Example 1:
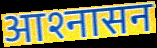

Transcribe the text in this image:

आश्नासन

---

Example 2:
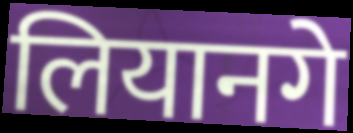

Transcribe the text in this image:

लियानगे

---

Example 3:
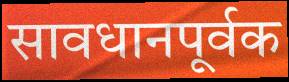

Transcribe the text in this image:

सावधानपूर्वक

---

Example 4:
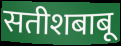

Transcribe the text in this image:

सतीशबाबू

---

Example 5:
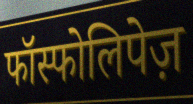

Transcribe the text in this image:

फॉस्फोलिपेज़